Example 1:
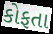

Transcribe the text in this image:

કોફતા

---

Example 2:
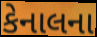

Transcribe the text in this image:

કેનાલના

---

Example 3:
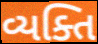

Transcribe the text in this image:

વ્યક્તિ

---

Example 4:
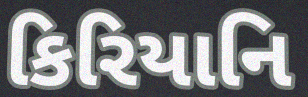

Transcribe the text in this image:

કિરિયાનિ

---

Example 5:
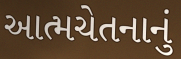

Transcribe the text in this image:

આત્મચેતનાનું